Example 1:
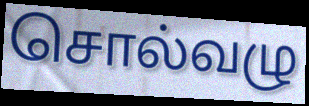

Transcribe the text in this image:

சொல்வழு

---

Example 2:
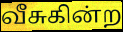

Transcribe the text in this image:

வீசுகின்ற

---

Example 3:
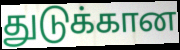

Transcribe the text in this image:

துடுக்கான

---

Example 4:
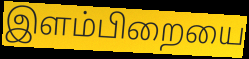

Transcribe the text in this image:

இளம்பிறையை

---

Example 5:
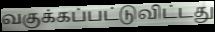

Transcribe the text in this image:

வகுக்கப்பட்டுவிட்டது